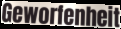
Geworfenheit